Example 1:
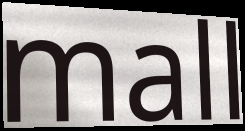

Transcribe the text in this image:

mall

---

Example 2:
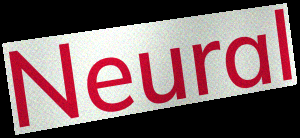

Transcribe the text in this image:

Neural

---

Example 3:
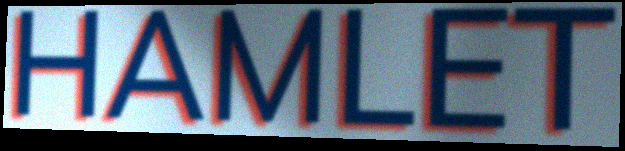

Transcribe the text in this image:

HAMLET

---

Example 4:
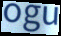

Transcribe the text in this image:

ogu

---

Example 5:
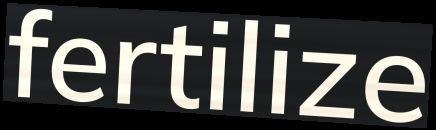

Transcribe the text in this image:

fertilize